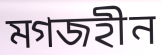
মগজহীন